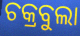
ଚକ୍ରବୁଲା